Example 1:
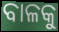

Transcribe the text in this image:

ବାଳକୁ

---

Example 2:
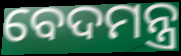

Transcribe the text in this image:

ବେଦମନ୍ତ୍ର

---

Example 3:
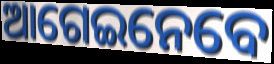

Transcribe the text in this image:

ଆଗେଇନେବେ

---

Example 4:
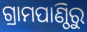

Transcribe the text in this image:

ଗ୍ରାମପାଣ୍ଠିରୁ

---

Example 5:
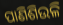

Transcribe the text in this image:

ପାଣିଶିଉଳି